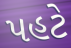
પહટે